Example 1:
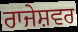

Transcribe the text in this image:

ਰਾਜੇਸ਼ਵਰ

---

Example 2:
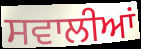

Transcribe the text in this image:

ਸਵਾਲੀਆਂ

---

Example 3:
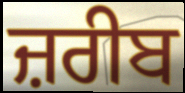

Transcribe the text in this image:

ਜ਼ਰੀਬ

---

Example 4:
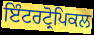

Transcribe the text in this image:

ਇੰਟਰਟ੍ਰੋਪਿਕਲ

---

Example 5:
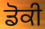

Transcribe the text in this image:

ਡੋਕੀ